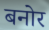
बनोर